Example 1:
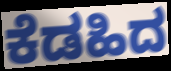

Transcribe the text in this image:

ಕೆಡಹಿದ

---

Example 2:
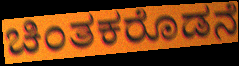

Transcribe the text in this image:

ಚಿಂತಕರೊಡನೆ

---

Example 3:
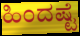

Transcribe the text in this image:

ಹಿಂದಷ್ಟೆ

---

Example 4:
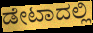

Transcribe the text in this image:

ಡೇಟಾದಲ್ಲಿ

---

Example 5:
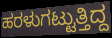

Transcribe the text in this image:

ಹರಳುಗಟ್ಟುತ್ತಿದ್ದ